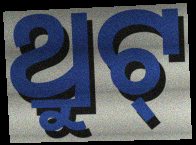
ଥ୍ରୁଟ୍